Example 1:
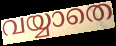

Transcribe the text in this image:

വയ്യാതെ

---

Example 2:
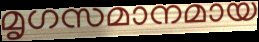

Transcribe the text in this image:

മൃഗസമാനമായ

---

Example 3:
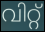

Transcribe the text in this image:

വിറ്റ്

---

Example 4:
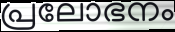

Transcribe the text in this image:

പ്രലോഭനം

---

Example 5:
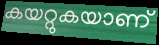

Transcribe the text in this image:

കയറ്റുകയാണ്